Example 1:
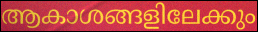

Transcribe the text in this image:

ആകാശങ്ങളിലേക്കും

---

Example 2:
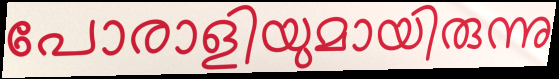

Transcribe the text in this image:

പോരാളിയുമായിരുന്നു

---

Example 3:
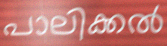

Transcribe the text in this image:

പാലിക്കൽ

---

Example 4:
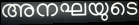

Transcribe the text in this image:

അനഘയുടെ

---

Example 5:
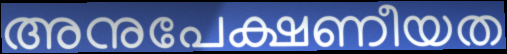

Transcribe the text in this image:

അനുപേക്ഷണീയത